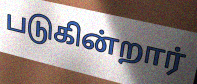
படுகின்றார்